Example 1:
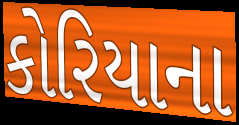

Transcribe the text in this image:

કોરિયાના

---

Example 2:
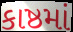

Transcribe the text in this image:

કાષ્ઠમાં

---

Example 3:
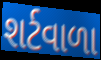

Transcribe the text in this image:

શર્ટવાળા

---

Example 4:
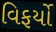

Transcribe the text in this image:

વિફર્યો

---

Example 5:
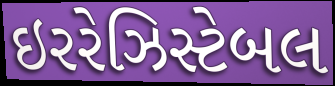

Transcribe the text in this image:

ઇરરેઝિસ્ટેબલ